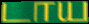
டாய